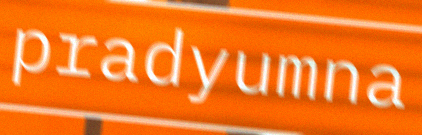
pradyumna